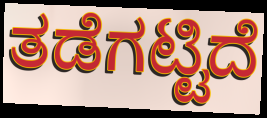
ತಡೆಗಟ್ಟಿದೆ